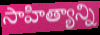
సాహిత్యాన్ని